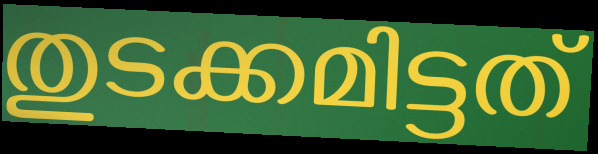
തുടക്കമിട്ടത്